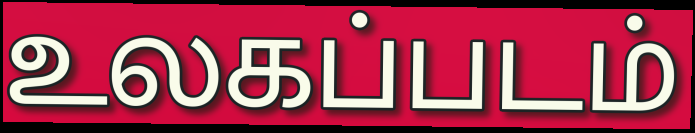
உலகப்படம்